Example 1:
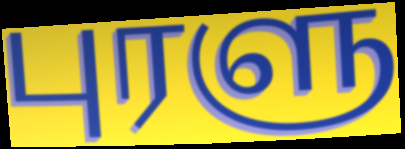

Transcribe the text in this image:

புரளு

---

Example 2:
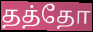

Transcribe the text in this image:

தத்தோ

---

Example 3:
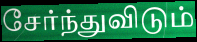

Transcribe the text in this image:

சேர்ந்துவிடும்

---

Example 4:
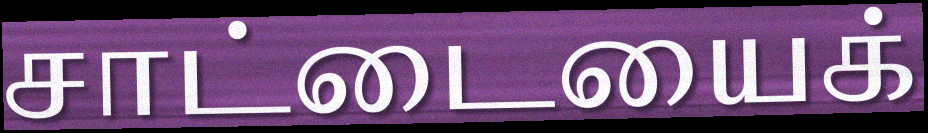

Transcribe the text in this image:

சாட்டையைக்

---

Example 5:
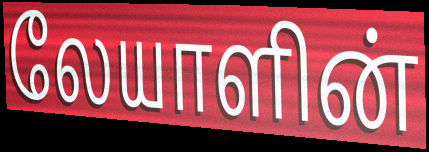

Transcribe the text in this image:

லேயாளின்